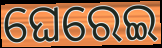
ଘେରେଇ